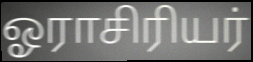
ஓராசிரியர்